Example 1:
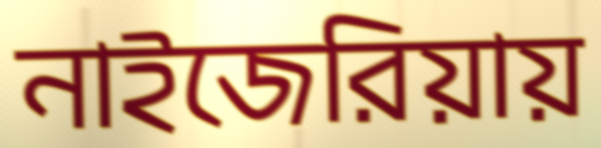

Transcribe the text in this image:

নাইজেরিয়ায়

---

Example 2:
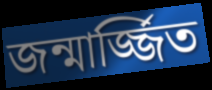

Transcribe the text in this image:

জন্মার্জ্জিত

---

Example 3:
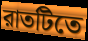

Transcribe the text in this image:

রাতটিতে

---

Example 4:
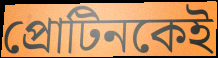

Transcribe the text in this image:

প্রোটিনকেই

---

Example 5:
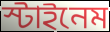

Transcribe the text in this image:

স্টাইনেম